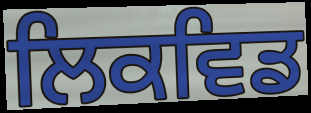
ਲਿਕਵਿਡ